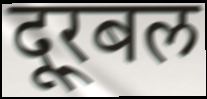
दूर्बल